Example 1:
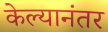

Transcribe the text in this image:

केल्यानंतर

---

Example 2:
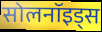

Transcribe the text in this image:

सोलनॉइड्स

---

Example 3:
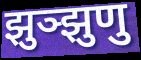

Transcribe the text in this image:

झुञ्झुणु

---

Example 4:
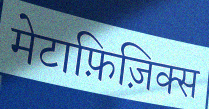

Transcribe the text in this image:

मेटाफ़िज़िक्स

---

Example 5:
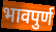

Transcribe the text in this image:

भावपुर्ण